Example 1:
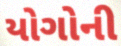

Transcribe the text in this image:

યોગોની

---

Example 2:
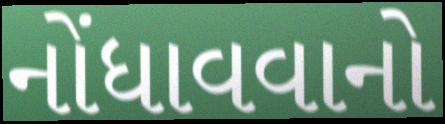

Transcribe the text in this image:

નોંધાવવાનો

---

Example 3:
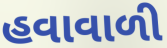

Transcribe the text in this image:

હવાવાળી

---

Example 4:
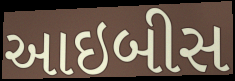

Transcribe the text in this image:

આઇબીસ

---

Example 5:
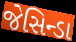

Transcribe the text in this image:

જેસિન્ડા